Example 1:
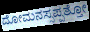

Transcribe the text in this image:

ದೋಮನಸ್ಸಪ್ಪತ್ತೋ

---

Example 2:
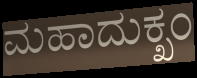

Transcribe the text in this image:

ಮಹಾದುಕ್ಖಂ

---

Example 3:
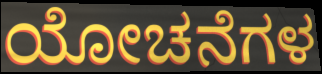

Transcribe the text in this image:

ಯೋಚನೆಗಳ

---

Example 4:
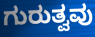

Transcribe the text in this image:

ಗುರುತ್ವವು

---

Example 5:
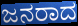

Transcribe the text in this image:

ಜನರಾದ